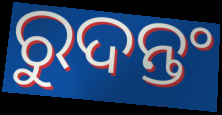
ରୁଦନ୍ତଂ